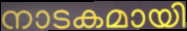
നാടകമായി